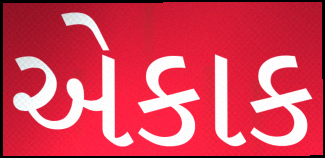
એકાક